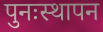
पुनःस्थापन